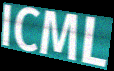
ICML